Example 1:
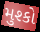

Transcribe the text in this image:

મુશ્કો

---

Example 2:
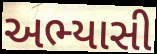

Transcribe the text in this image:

અભ્યાસી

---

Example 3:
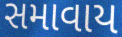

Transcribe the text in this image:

સમાવાય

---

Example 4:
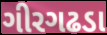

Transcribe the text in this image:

ગીરગઢડા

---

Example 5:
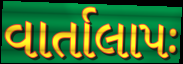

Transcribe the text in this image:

વાર્તાલાપઃ